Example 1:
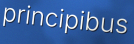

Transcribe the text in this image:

principibus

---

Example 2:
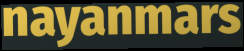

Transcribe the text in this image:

nayanmars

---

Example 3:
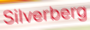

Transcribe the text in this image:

Silverberg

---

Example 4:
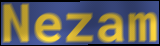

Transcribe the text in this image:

Nezam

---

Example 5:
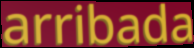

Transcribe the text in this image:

arribada